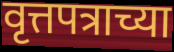
वृत्तपत्राच्या